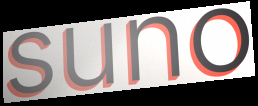
suno